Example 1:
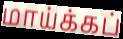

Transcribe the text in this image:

மாய்க்கப்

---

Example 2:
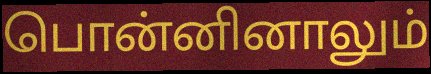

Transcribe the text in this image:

பொன்னினாலும்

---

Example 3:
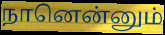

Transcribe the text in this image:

நானென்னும்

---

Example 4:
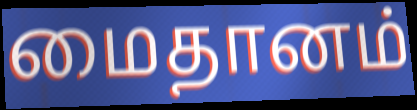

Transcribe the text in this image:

மைதானம்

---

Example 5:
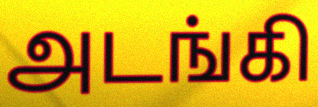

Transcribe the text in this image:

அடங்கி